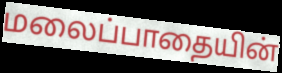
மலைப்பாதையின்